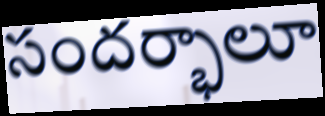
సందర్భాలూ